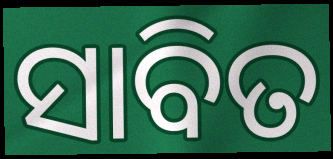
ସାବିତ